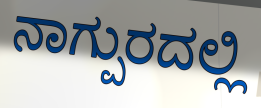
ನಾಗ್ಪುರದಲ್ಲಿ